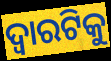
ଦ୍ଵାରଟିକୁ